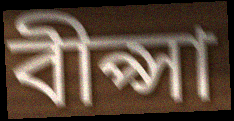
বীপ্সা